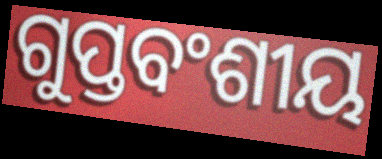
ଗୁପ୍ତବଂଶୀୟ